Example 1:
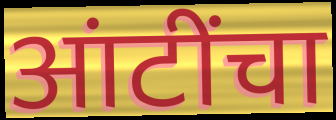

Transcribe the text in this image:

आंटींचा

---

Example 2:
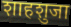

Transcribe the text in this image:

शाहशुजा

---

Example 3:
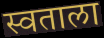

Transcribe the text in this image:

स्वताला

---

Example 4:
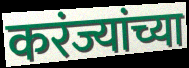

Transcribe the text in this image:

करंज्यांच्या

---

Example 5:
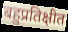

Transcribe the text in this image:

बहुप्रतिक्षीत